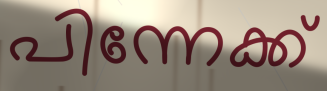
പിന്നേക്ക്